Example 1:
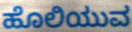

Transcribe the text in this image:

ಹೊಲಿಯುವ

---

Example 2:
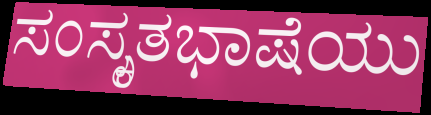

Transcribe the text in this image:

ಸಂಸ್ಕೃತಭಾಷೆಯು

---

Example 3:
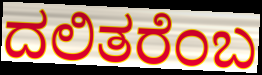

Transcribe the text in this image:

ದಲಿತರೆಂಬ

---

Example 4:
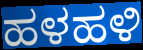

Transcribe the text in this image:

ಹಳಹಳಿ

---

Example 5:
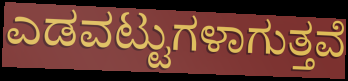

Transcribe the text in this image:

ಎಡವಟ್ಟುಗಳಾಗುತ್ತವೆ